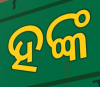
ହଙ୍କ